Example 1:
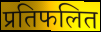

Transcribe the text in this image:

प्रतिफलित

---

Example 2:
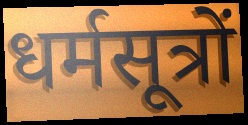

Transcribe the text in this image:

धर्मसूत्रों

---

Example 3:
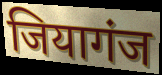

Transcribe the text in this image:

जियागंज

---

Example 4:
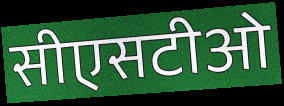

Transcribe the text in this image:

सीएसटीओ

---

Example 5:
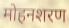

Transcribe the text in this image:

मोहनशरण